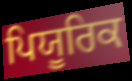
ਪਿਯੂਰਿਕ